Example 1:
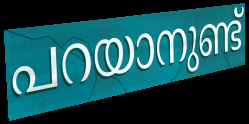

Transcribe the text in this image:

പറയാനുണ്ട്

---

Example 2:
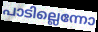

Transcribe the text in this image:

പാടില്ലെന്നോ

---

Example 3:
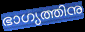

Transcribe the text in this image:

ഭാഗ്യത്തിനു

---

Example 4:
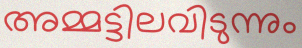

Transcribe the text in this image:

അമ്മട്ടിലവിടുന്നും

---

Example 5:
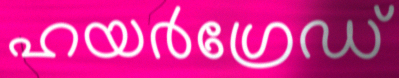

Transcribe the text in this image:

ഹയർഗ്രേഡ്